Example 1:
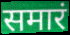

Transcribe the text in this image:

समारं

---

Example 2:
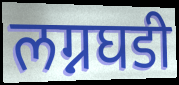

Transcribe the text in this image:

लग्नघडी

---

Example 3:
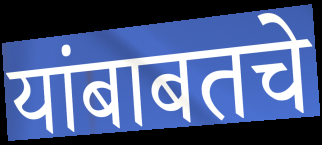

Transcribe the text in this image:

यांबाबतचे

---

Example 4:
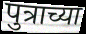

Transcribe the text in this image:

पुत्राच्या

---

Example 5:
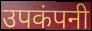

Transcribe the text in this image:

उपकंपनी